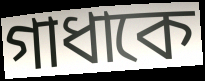
গাধাকে